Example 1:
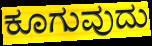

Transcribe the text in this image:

ಕೂಗುವುದು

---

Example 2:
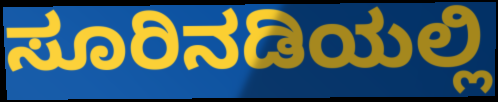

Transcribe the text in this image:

ಸೂರಿನಡಿಯಲ್ಲಿ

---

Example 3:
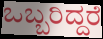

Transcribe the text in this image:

ಒಬ್ಬರಿದ್ದರೆ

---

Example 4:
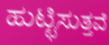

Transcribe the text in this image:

ಹುಟ್ಟಿಸುತ್ತವೆ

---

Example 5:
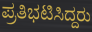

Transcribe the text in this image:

ಪ್ರತಿಭಟಿಸಿದ್ದರು